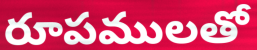
రూపములతో